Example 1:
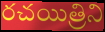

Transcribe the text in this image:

రచయిత్రిని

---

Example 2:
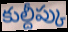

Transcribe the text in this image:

కుల్దీప్కు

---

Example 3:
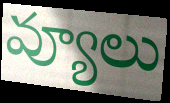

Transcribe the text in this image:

వ్యూలు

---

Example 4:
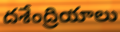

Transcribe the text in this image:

దశేంద్రియాలు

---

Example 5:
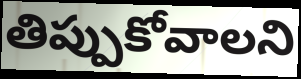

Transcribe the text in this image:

తిప్పుకోవాలని